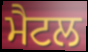
ਮੈਟਲ